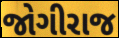
જોગીરાજ